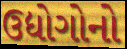
ઉદ્યોગોનો